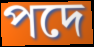
পদে